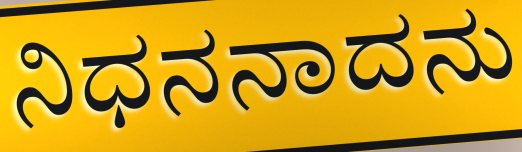
ನಿಧನನಾದನು